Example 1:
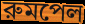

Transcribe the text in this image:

রুমপেল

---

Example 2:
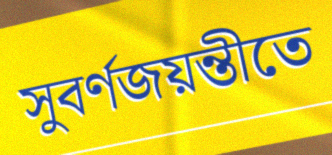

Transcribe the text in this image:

সুবর্ণজয়ন্তীতে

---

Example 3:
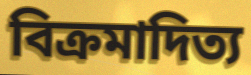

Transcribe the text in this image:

বিক্রমাদিত্য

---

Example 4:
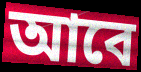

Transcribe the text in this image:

আবে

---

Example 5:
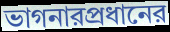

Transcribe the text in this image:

ভাগনারপ্রধানের